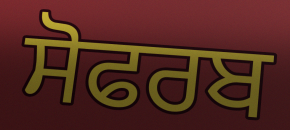
ਸੋਫਰਬ